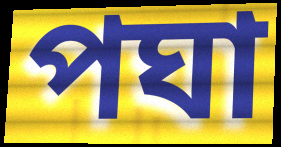
পঘা